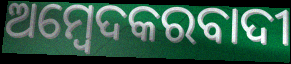
ଅମ୍ବେଦକରବାଦୀ